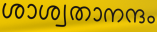
ശാശ്വതാനന്ദം